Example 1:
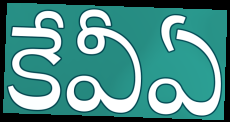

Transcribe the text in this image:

కేవీఏ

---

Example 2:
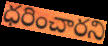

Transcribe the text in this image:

ధరించారని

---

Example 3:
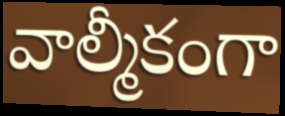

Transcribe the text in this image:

వాల్మీకంగా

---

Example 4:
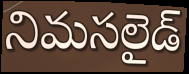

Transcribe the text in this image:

నిమసలైడ్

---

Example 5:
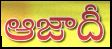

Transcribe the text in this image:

ఆజాదీ